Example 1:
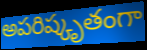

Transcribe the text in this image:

అపరిష్కృతంగా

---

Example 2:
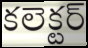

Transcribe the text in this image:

కలెక్టర్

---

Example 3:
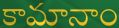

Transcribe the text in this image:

కామానాం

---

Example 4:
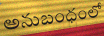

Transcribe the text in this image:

అనుబంధంలో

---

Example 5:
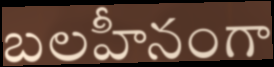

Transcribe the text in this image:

బలహీనంగా